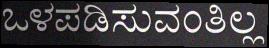
ಒಳಪಡಿಸುವಂತಿಲ್ಲ